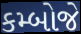
કમ્બોજે